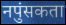
नपुंसकता